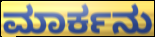
ಮಾರ್ಕನು